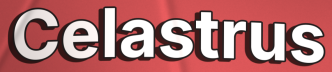
Celastrus